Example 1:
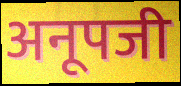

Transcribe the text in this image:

अनूपजी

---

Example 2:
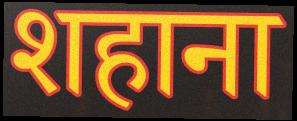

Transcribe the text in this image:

शहाना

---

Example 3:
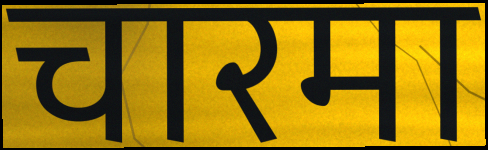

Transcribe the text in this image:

चारमा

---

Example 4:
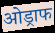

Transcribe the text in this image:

ओड्राफ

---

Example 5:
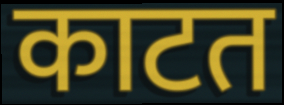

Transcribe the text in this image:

काटत